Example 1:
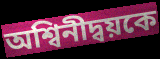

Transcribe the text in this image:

অশ্বিনীদ্বয়কে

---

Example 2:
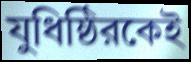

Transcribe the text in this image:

যুধিষ্ঠিরকেই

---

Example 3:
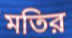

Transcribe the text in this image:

মতির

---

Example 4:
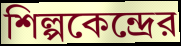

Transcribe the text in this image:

শিল্পকেন্দ্রের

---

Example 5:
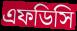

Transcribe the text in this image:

এফডিসি